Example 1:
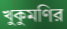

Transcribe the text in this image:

খুকুমণির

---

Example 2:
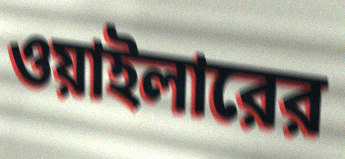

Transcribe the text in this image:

ওয়াইলারের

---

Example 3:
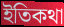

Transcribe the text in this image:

ইতিকথা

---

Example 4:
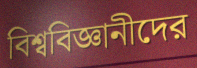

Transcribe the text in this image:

বিশ্ববিজ্ঞানীদের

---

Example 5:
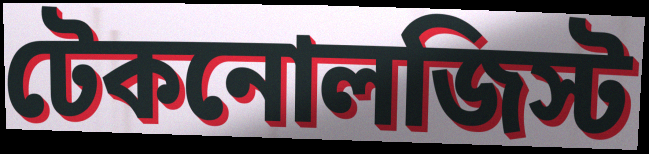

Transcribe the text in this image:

টেকনোলজিস্ট